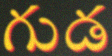
గుడ